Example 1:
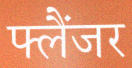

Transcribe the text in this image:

फ्लैंजर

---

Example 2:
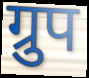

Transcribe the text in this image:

ग्रुप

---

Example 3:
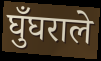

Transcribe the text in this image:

घुँघराले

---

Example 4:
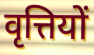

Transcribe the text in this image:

वृत्तियों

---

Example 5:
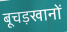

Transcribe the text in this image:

बूचड़खानों